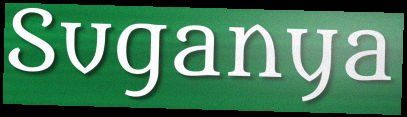
Suganya